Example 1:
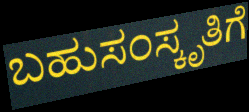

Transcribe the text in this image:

ಬಹುಸಂಸ್ಕೃತಿಗೆ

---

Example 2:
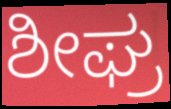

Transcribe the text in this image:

ಶೀಘ್ರ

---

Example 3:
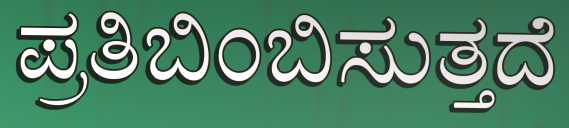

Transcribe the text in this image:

ಪ್ರತಿಬಿಂಬಿಸುತ್ತದೆ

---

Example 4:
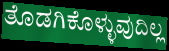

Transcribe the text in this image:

ತೊಡಗಿಕೊಳ್ಳುವುದಿಲ್ಲ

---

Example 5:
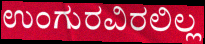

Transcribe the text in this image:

ಉಂಗುರವಿರಲಿಲ್ಲ